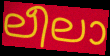
ലീലാ